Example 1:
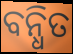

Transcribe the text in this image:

ବନ୍ଧିତ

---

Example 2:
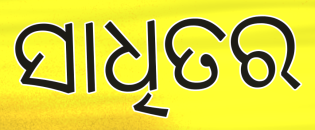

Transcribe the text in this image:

ସାଧିତର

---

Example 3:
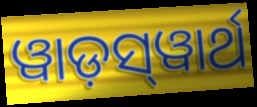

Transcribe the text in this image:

ୱାଡ଼ସ୍‌ୱାର୍ଥ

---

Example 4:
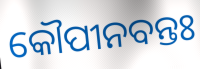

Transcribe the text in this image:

କୌପୀନବନ୍ତଃ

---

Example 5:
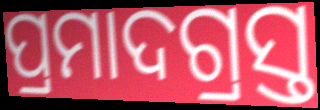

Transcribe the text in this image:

ପ୍ରମାଦଗ୍ରସ୍ତ